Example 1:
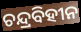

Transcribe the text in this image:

ଚନ୍ଦ୍ରବିହୀନ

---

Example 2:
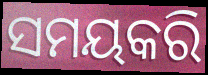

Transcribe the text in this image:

ସମୟକରି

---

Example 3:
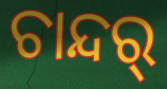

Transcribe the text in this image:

ଚାନ୍ଦର୍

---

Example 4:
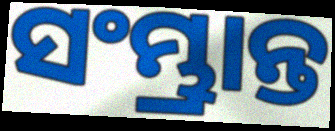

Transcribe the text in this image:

ସଂମ୍ଭ୍ରାନ୍ତ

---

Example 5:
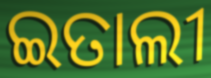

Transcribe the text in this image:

ଇତାଲୀ